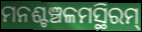
ମନଶ୍ଚଞ୍ଚଳମସ୍ଥିରମ୍